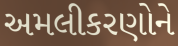
અમલીકરણોને